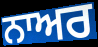
ਨਾਅਰ